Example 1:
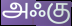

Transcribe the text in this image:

அஃகு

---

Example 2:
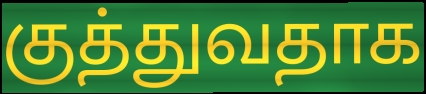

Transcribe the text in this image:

குத்துவதாக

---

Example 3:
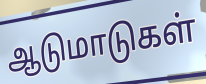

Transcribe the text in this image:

ஆடுமாடுகள்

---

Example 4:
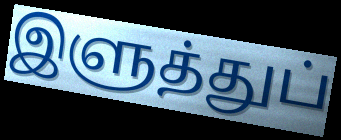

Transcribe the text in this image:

இளுத்துப்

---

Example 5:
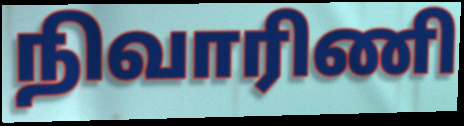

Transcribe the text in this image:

நிவாரிணி